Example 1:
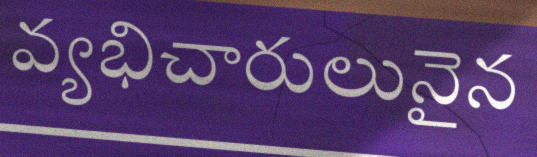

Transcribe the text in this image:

వ్యభిచారులునైన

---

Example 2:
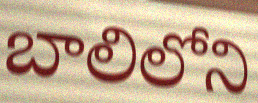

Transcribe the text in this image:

బాలిలోని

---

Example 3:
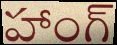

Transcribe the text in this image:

హాంగ్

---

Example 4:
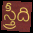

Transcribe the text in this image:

స్త్రీది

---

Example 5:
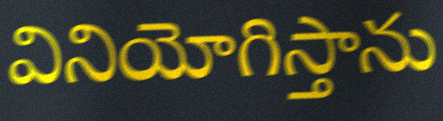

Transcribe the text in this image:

వినియోగిస్తాను